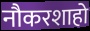
नौकरशाहो